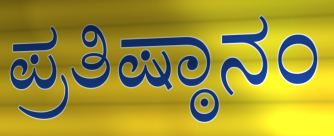
ಪ್ರತಿಷ್ಠಾನಂ